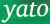
yato